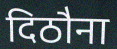
दिठौना